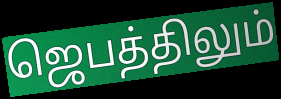
ஜெபத்திலும்